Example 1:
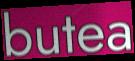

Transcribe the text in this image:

butea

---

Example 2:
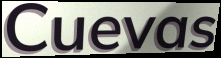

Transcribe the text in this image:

Cuevas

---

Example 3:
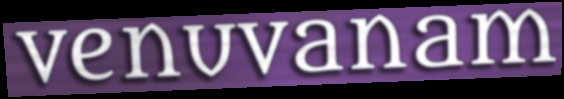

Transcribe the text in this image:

venuvanam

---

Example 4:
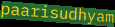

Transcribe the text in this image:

paarisudhyam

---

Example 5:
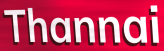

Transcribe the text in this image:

Thannai